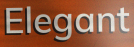
Elegant